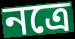
নত্রে